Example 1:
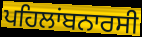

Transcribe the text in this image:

ਪਹਿਲਾਂਬਨਾਰਸੀ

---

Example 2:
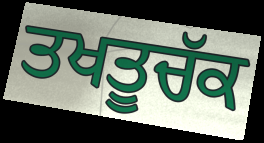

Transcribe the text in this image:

ਤਖਤੂਚੱਕ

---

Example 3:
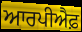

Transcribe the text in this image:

ਆਰਪੀਐਫ਼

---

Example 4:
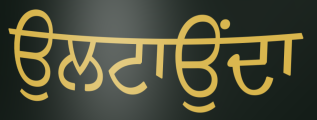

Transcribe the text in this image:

ਉਲਟਾਉਂਦਾ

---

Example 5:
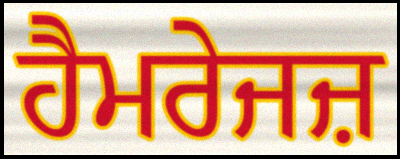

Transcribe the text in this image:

ਹੈਮਰੇਜਜ਼